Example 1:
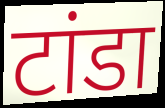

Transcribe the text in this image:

टांडा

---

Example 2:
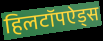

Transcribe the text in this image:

हिलटॉपऐड्स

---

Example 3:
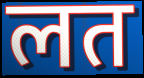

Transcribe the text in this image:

लत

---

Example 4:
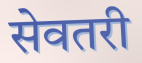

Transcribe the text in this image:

सेवतरी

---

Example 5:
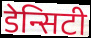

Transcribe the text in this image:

डेन्सिटी